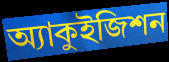
অ্যাকুইজিশন